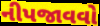
નીપજાવવો